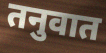
तनुवात